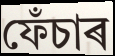
ফেঁচাৰ